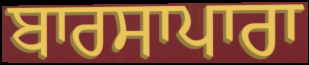
ਬਾਰਸਾਪਾਰਾ